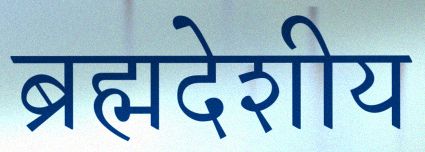
ब्रह्मदेशीय